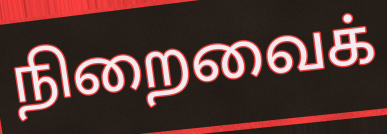
நிறைவைக்